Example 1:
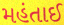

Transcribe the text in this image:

મહંતાઈ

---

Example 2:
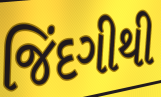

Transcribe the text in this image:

જિંદગીથી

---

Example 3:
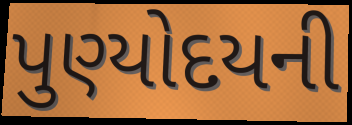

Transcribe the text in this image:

પુણ્યોદયની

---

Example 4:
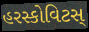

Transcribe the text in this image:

હરસ્કોવિટસ્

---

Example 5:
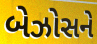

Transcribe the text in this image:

બેઝોસને